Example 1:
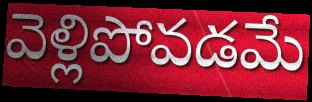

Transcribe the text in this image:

వెళ్లిపోవడమే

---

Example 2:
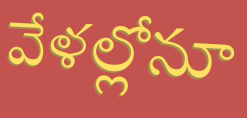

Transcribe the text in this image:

వేళల్లోనూ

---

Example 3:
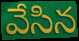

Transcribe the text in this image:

వేసిన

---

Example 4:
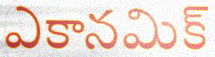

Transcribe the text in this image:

ఎకానమిక్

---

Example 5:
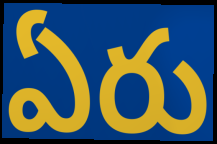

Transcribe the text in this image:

ఏరు